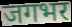
जगभर